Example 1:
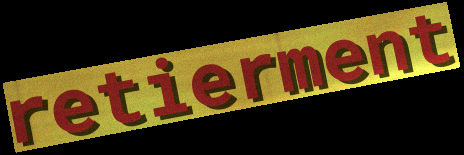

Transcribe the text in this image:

retierment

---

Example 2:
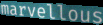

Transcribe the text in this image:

marvellous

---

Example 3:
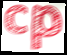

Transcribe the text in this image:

cp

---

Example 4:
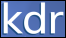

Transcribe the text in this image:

kdr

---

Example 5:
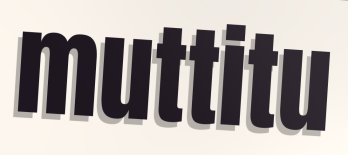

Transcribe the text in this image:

muttitu